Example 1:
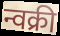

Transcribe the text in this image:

न्वक्री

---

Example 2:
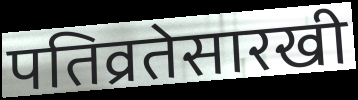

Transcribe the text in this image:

पतिव्रतेसारखी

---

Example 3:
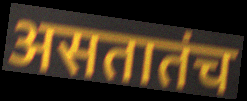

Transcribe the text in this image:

असतातंच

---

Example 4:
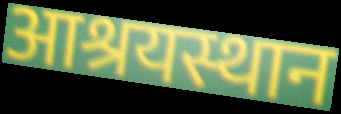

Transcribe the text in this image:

आश्रयस्थान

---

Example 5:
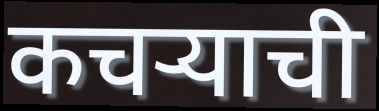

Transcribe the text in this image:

कचऱ्याची